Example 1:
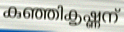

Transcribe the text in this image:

കുഞ്ഞികൃഷ്ണന്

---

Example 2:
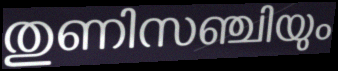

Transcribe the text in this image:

തുണിസഞ്ചിയും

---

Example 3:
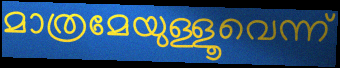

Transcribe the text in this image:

മാത്രമേയുള്ളൂവെന്ന്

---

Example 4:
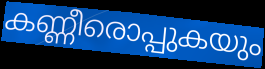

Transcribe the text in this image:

കണ്ണീരൊപ്പുകയും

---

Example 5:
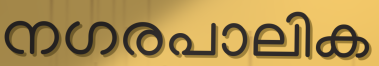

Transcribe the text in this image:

നഗരപാലിക